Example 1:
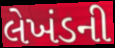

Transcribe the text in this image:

લેખંડની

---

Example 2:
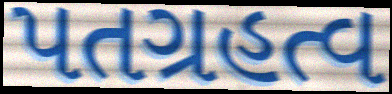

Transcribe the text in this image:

પતગ્રહત્વ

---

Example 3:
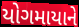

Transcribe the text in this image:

યોગમાયાને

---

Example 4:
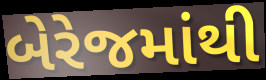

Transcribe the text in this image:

બેરેજમાંથી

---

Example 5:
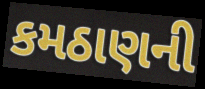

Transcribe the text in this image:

કમઠાણની